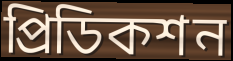
প্রিডিকশন